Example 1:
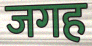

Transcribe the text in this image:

जगह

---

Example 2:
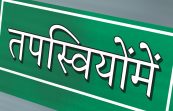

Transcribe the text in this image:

तपस्वियोंमें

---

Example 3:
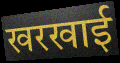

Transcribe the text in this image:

खरखाई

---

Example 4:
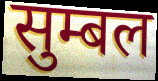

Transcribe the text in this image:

सुम्बल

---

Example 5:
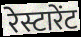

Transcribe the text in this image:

रेस्टारेंट